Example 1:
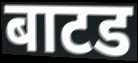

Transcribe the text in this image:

बाटड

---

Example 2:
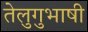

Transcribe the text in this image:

तेलुगुभाषी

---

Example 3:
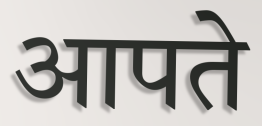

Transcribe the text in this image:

आपते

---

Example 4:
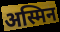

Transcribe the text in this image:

अस्मिन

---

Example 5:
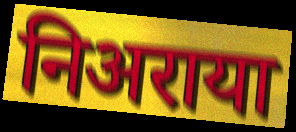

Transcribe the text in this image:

निअराया